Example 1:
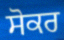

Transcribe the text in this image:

ਸੋਕਰ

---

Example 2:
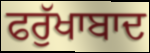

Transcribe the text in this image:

ਫਰੁੱਖਾਬਾਦ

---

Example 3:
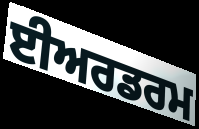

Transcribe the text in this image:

ਈਅਰਡਰਮ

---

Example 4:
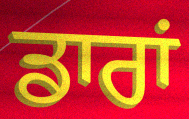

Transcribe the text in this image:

ਡਾਰਾਂ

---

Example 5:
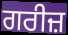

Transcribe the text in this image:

ਗਰੀਜ਼